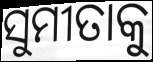
ସୁମୀତାକୁ